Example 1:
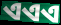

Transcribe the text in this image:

ଏଏଏ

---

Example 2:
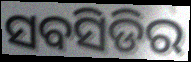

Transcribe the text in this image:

ସବସିଡିର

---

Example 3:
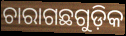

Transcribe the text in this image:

ଚାରାଗଛଗୁଡ଼ିକ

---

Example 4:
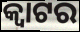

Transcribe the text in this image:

କ୍ୱାଟର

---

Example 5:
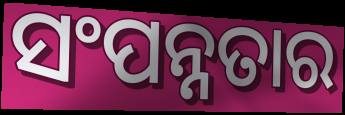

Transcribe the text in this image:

ସଂପନ୍ନତାର